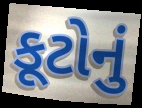
કૂટોનું